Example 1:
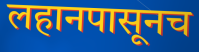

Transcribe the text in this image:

लहानपासूनच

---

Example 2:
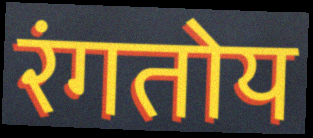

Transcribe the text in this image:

रंगतोय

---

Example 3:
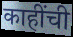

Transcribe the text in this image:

काहींची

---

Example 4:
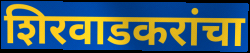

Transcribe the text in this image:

शिरवाडकरांचा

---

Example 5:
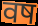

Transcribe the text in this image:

वष